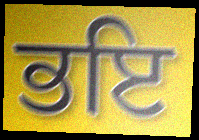
ਭਇ